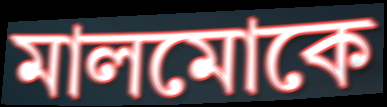
মালমোকে